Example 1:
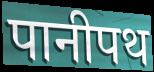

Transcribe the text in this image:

पानीपथ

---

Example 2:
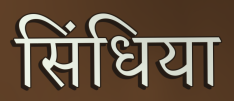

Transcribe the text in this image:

सिंधिया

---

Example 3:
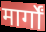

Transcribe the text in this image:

मार्गों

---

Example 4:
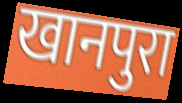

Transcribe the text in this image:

खानपुरा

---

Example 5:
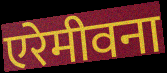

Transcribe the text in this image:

एरेमीवना